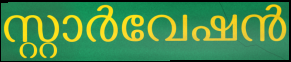
സ്റ്റാർവേഷൻ